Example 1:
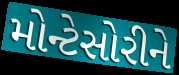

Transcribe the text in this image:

મોન્ટેસોરીને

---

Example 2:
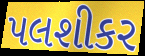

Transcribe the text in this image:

પલશીકર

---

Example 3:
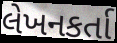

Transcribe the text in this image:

લેખનકર્તા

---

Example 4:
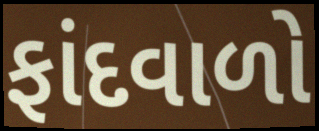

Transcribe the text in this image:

ફાંદવાળો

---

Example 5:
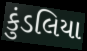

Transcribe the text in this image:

કુંડલિયા